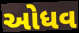
ઓધવ